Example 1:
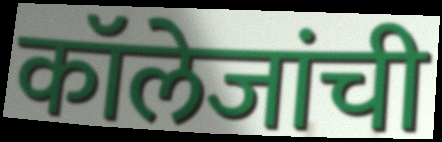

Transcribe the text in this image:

कॉलेजांची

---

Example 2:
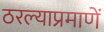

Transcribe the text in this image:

ठरल्याप्रमाणें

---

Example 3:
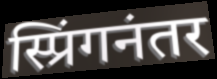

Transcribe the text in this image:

स्प्रिंगनंतर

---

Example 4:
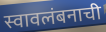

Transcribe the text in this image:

स्वावलंबनाची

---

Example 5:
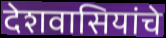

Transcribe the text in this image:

देशवासियांचे